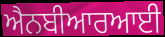
ਐਨਬੀਆਰਆਈ